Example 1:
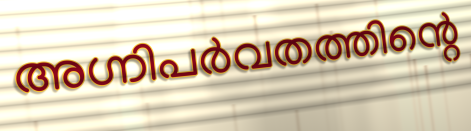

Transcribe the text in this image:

അഗ്നിപർവതത്തിന്റെ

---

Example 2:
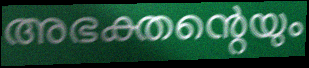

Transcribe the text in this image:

അഭക്തന്റെയും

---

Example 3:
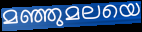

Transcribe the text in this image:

മഞ്ഞുമലയെ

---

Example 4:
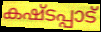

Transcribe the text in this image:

കഷ്ടപ്പാട്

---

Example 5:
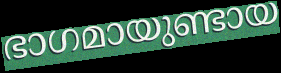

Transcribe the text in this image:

ഭാഗമായുണ്ടായ